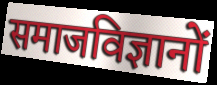
समाजविज्ञानों